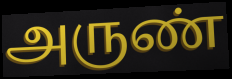
அருண்